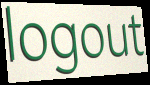
logout